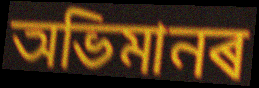
অভিমানৰ